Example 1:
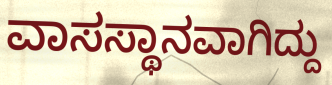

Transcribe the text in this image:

ವಾಸಸ್ಥಾನವಾಗಿದ್ದು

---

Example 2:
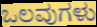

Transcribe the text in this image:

ಒಲವುಗಳು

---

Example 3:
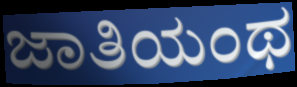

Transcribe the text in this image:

ಜಾತಿಯಂಥ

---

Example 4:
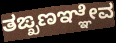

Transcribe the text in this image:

ತಙ್ಖಣಞ್ಞೇವ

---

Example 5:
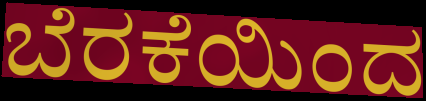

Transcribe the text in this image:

ಬೆರಕೆಯಿಂದ